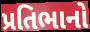
પ્રતિભાનો